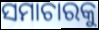
ସମାଚାରକୁ